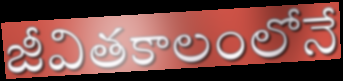
జీవితకాలంలోనే